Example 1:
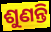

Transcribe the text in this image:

ଶୁଣନ୍ତି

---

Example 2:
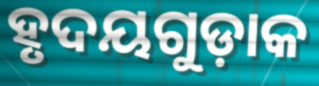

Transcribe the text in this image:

ହୃଦୟଗୁଡ଼ାକ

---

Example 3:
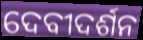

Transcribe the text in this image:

ଦେବୀଦର୍ଶନ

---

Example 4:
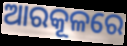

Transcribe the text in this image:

ଆରକୂଳରେ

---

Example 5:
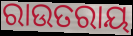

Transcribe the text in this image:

ରାଉତରାୟ